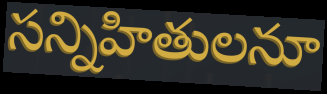
సన్నిహితులనూ